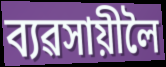
ব্যৱসায়ীলৈ